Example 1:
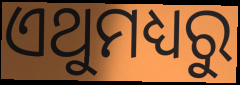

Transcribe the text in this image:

ଏଥୁମଧ୍ୟରୁ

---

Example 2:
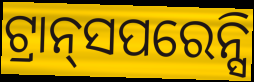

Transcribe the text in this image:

ଟ୍ରାନ୍‌ସପରେନ୍ସି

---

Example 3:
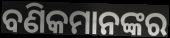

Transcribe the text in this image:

ବଣିକମାନଙ୍କର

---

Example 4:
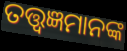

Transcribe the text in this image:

ତତ୍ତ୍ୱଜ୍ଞମାନଙ୍କ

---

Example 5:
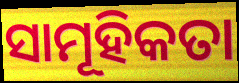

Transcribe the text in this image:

ସାମୂହିକତା